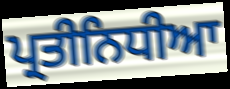
ਪ੍ਰਤੀਨਿਧੀਆ